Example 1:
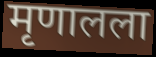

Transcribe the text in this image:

मृणालला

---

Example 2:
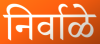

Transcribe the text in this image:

निर्वाळे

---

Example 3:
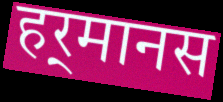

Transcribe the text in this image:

हर्मानस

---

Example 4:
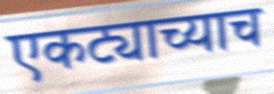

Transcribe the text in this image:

एकट्याच्याच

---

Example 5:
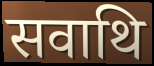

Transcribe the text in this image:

सवाथि